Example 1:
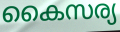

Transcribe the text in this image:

കൈസര്യ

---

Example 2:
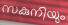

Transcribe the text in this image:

സകുനിയും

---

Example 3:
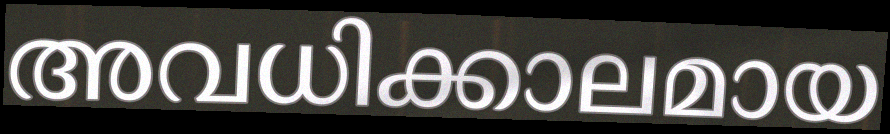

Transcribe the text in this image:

അവധിക്കാലമായ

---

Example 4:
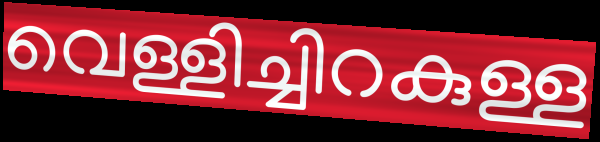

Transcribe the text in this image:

വെള്ളിച്ചിറകുള്ള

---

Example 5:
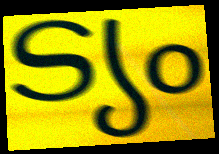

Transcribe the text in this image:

ട്യം